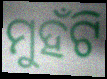
ମୁହଁଟି